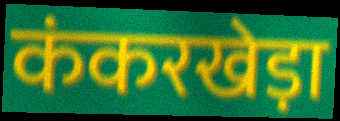
कंकरखेड़ा